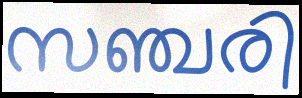
സഞ്ചരി